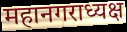
महानगराध्यक्ष